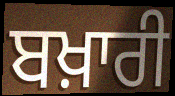
ਬਖ਼ਾਰੀ